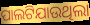
ପାଲଟିଯାଉଥିଲା